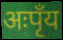
अःपृँय